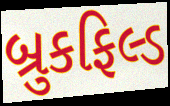
બ્રુકફિલ્ડ